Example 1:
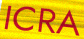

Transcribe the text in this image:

ICRA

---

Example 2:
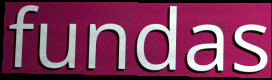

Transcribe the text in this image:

fundas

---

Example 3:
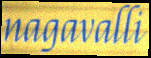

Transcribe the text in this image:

nagavalli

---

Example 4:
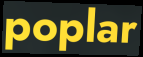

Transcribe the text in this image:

poplar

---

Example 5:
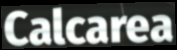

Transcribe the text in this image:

Calcarea